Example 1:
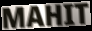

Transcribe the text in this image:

MAHIT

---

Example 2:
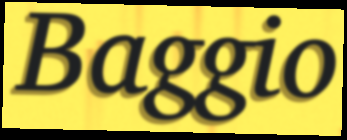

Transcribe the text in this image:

Baggio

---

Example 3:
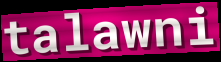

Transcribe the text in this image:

talawni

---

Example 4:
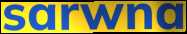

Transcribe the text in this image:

sarwna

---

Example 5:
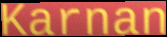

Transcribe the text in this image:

Karnan